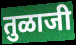
तुळाजी